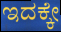
ಇದಕ್ಕೇ